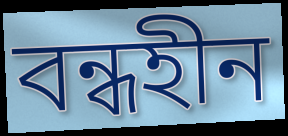
বন্ধহীন